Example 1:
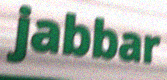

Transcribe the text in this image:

jabbar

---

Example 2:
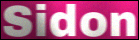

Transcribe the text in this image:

Sidon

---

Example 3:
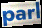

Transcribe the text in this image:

parl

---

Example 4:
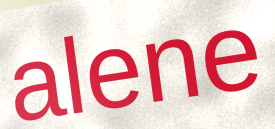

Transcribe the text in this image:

alene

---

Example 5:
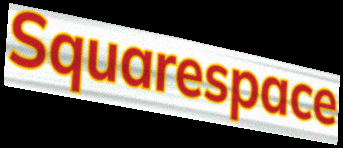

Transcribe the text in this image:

Squarespace